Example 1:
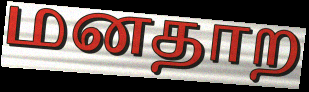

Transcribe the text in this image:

மனதாற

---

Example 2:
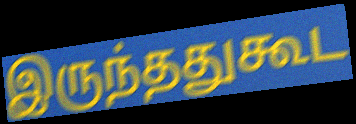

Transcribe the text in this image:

இருந்ததுகூட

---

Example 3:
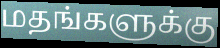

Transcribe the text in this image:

மதங்களுக்கு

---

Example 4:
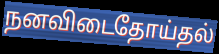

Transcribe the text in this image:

நனவிடைதோய்தல்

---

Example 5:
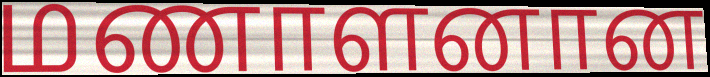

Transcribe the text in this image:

மணாளனான